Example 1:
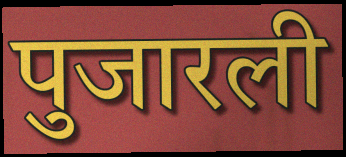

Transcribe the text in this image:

पुजारली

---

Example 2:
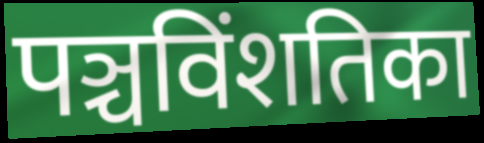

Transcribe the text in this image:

पञ्चविंशतिका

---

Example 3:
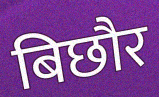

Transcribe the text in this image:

बिछौर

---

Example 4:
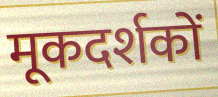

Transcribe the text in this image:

मूकदर्शकों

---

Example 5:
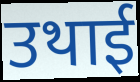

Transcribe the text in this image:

उथाई